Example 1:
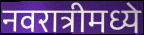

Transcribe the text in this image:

नवरात्रीमध्ये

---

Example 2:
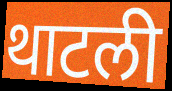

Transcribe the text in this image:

थाटली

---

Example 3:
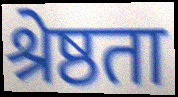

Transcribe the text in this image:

श्रेष्ठता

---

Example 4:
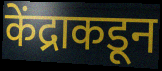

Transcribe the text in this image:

केंद्राकडून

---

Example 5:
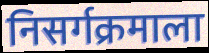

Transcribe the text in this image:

निसर्गक्रमाला